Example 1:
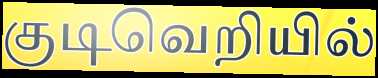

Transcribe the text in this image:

குடிவெறியில்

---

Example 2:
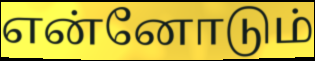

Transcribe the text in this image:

என்னோடும்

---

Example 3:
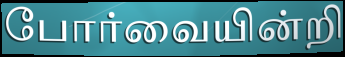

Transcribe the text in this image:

போர்வையின்றி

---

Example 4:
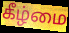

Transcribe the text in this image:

கீழ்மை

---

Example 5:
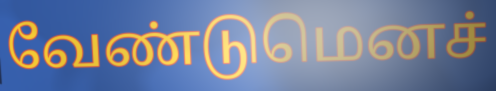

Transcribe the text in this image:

வேண்டுமெனச்